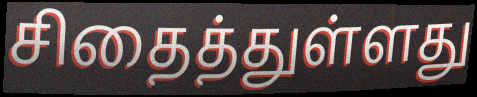
சிதைத்துள்ளது